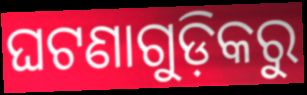
ଘଟଣାଗୁଡ଼ିକରୁ